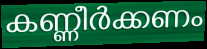
കണ്ണീർക്കണം